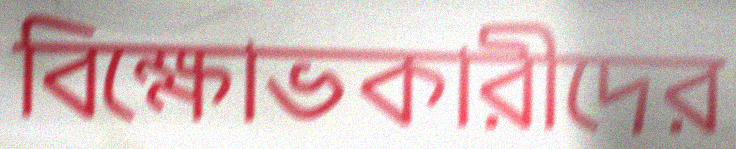
বিক্ষোভকারীদের